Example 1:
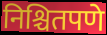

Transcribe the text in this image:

निश्चितपणे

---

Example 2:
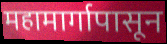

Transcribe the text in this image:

महामार्गापासून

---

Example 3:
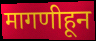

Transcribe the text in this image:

मागणीहून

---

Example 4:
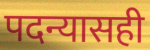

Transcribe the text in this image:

पदन्यासही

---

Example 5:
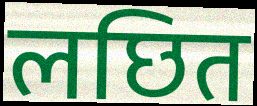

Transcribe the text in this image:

लछित